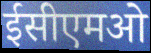
ईसीएमओ